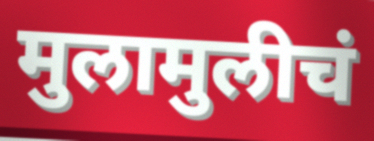
मुलामुलीचं